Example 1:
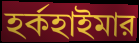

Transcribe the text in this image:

হর্কহাইমার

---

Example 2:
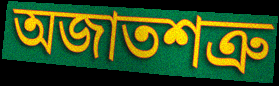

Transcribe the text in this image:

অজাতশত্রু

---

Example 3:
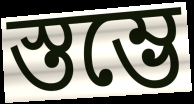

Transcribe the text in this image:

স্তম্ভে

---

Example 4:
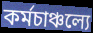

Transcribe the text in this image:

কর্মচাঞ্চল্যে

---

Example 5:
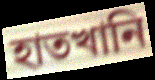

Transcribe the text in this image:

হাতখানি